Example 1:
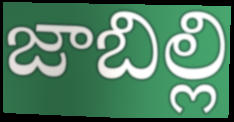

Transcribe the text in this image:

జాబిల్లి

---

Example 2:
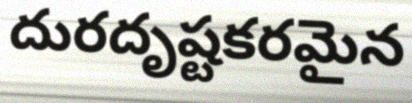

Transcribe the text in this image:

దురదృష్టకరమైన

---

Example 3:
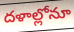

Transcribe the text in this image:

దళాల్లోనూ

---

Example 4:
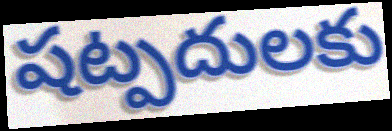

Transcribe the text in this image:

షట్పదులకు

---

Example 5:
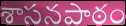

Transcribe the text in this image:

శాసనపాఠం